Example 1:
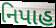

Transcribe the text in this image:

નિપાહ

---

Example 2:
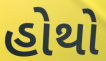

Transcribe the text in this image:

હોથો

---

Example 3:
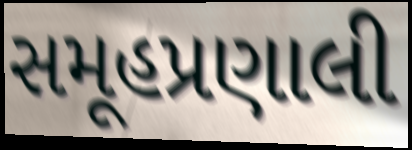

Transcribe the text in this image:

સમૂહપ્રણાલી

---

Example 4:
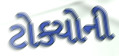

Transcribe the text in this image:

ટોક્યોની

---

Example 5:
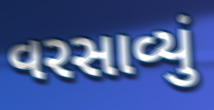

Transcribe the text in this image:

વરસાવ્યું